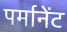
पर्मानेंट